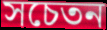
সচেতন